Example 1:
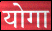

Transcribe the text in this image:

योगा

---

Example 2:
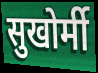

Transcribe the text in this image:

सुखोर्मी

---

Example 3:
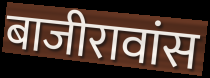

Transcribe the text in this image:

बाजीरावांस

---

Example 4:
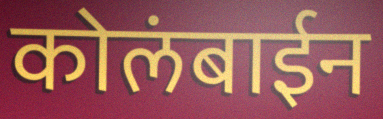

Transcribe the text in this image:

कोलंबाईन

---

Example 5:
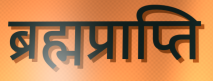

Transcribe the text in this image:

ब्रह्मप्राप्ति